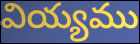
వియ్యము